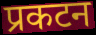
प्रकटन